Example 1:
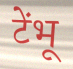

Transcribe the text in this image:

टेंभू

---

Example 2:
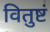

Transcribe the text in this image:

वितुष्टं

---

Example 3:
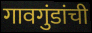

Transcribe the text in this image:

गावगुंडांची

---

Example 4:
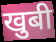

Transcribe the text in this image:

खुबी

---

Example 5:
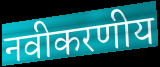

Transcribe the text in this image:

नवीकरणीय